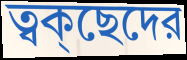
ত্বক্ছেদের